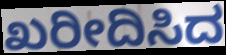
ಖರೀದಿಸಿದ